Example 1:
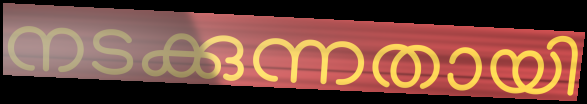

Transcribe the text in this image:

നടക്കുന്നതായി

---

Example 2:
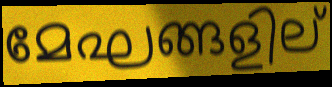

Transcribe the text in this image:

മേഘങ്ങളില്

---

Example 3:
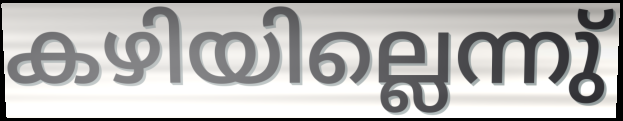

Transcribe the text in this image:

കഴിയില്ലെന്നു്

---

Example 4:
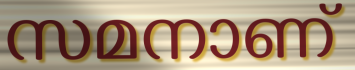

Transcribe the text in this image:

സമനാണ്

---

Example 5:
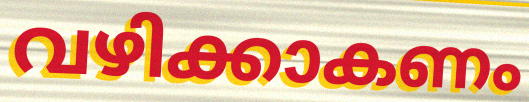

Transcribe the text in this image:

വഴിക്കാകണം